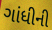
ગાંધીની